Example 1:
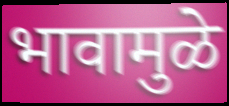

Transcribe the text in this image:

भावामुळे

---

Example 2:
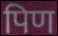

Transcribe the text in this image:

पिण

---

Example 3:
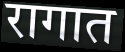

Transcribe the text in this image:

रागात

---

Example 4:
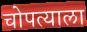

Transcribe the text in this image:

चोपत्याला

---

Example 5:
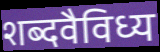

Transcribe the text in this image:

शब्दवैविध्य